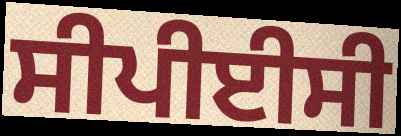
ਸੀਪੀਈਸੀ